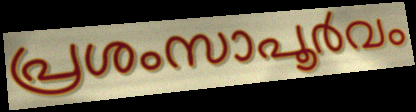
പ്രശംസാപൂർവം